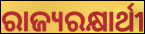
ରାଜ୍ୟରକ୍ଷାର୍ଥୀ